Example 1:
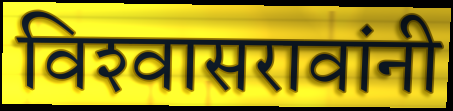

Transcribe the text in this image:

विश्वासरावांनी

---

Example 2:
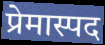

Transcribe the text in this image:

प्रेमास्पद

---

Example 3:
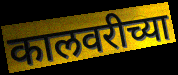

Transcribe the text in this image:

कालवरीच्या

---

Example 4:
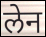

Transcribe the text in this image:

लेन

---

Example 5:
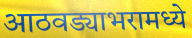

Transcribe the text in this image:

आठवड्याभरामध्ये